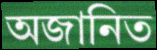
অজানিত